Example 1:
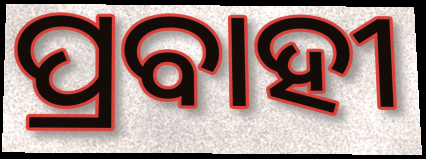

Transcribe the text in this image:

ପ୍ରବାହୀ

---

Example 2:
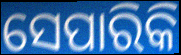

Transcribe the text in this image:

ସେପାରିକି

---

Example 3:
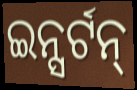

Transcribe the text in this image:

ଇନ୍ସର୍ଟନ୍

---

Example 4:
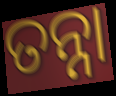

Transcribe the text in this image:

ତନ୍ନା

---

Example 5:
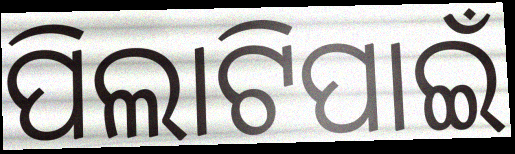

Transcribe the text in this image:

ପିଲାଟିପାଇଁ